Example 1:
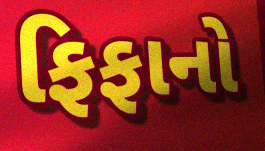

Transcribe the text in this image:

ફિફાનો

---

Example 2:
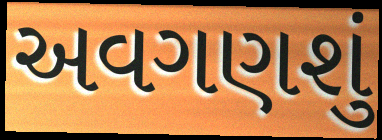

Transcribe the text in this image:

અવગણશું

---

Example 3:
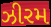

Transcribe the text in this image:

ઝીરમ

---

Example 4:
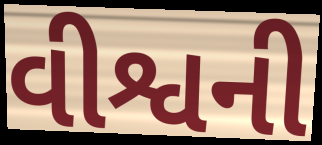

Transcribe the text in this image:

વીશ્વની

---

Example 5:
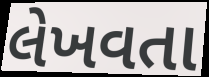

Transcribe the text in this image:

લેખવતા